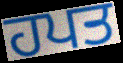
ਹਪਤ